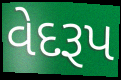
વેદરૂપ